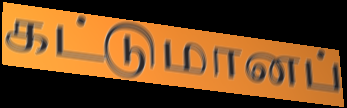
கட்டுமானப்